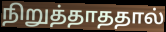
நிறுத்தாததால்